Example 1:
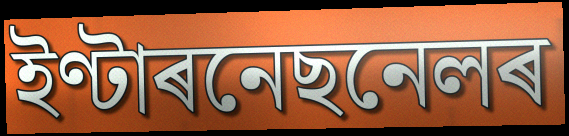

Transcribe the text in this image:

ইণ্টাৰনেছনেলৰ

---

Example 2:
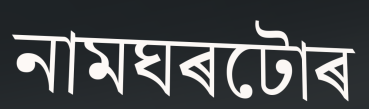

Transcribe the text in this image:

নামঘৰটোৰ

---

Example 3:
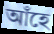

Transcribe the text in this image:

আঁহে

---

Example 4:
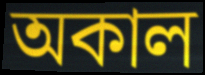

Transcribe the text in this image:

অকাল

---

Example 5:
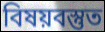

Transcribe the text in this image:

বিষয়বস্তুত